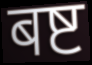
बष्ट